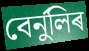
বেৰ্নুলিৰ